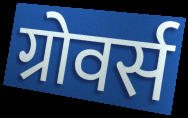
ग्रोवर्स